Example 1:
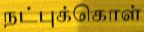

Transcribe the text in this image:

நட்புக்கொள்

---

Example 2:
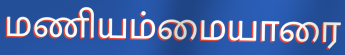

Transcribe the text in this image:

மணியம்மையாரை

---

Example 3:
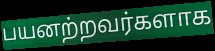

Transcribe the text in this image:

பயனற்றவர்களாக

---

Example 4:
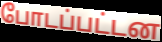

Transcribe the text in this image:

போடப்பட்டன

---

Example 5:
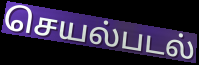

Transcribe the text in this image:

செயல்படல்